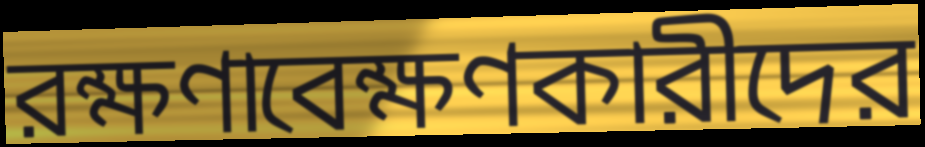
রক্ষণাবেক্ষণকারীদের